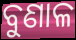
ବୁଣାଳ